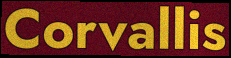
Corvallis